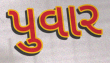
પુવાર